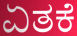
ಏತಕೆ